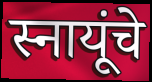
स्नायूंचे